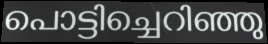
പൊട്ടിച്ചെറിഞ്ഞു